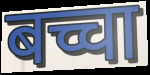
बच्चा